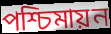
পশ্চিমায়ন